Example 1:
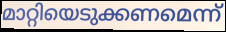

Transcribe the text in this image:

മാറ്റിയെടുക്കണമെന്ന്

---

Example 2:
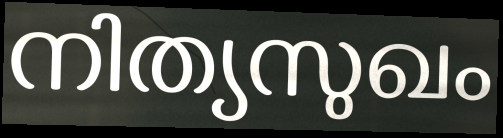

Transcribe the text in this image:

നിത്യസുഖം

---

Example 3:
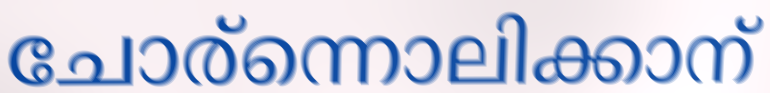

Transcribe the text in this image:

ചോര്ന്നൊലിക്കാന്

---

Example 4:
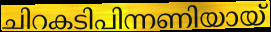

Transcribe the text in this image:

ചിറകടിപിന്നണിയായ്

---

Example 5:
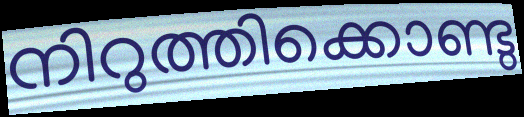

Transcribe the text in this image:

നിറുത്തിക്കൊണ്ടു